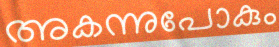
അകന്നുപോകും